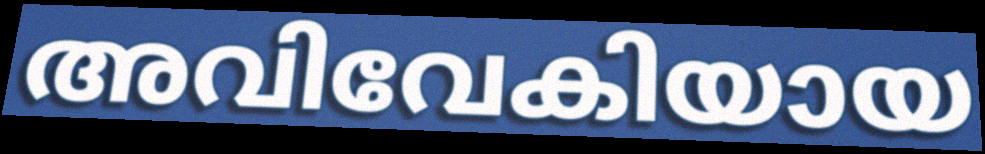
അവിവേകിയായ